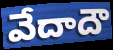
వేదాదౌ